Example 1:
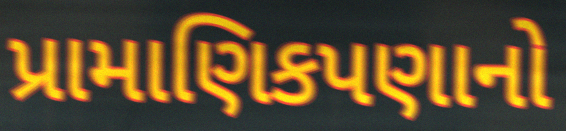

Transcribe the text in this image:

પ્રામાણિકપણાનો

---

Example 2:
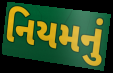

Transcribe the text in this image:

નિયમનું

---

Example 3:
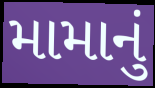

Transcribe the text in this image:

મામાનું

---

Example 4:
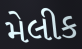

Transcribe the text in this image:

મેલીક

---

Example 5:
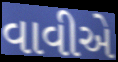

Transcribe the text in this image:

વાવીએ